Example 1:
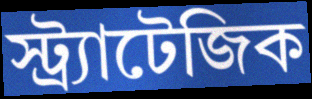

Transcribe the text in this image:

স্ট্র্যাটেজিক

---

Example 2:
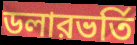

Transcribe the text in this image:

ডলারভর্তি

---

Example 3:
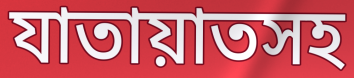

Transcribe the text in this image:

যাতায়াতসহ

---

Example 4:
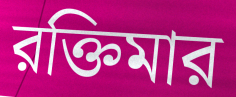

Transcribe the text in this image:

রক্তিমার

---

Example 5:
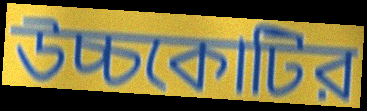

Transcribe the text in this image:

উচ্চকোটির